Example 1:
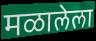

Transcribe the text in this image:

मळालेला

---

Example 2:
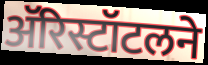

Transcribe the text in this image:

ॲरिस्टॉटलने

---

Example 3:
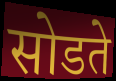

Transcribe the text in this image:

सोडते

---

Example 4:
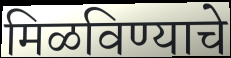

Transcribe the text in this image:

मिळविण्याचे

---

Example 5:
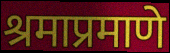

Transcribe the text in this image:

श्रमाप्रमाणे